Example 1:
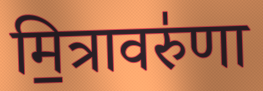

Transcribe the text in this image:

मि॒त्रावरु॑णा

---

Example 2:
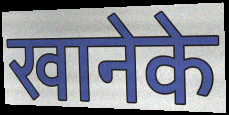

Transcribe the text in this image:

खानेके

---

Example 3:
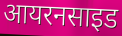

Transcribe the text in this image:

आयरनसाइड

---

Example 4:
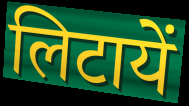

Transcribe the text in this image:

लिटायें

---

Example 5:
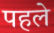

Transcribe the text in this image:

पहले